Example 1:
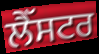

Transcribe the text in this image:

ਲੈੱਸਟਰ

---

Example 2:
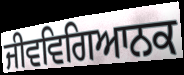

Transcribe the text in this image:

ਜੀਵਵਿਗਿਆਨਕ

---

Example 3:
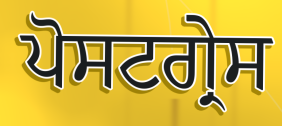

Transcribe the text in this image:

ਪੋਸਟਗ੍ਰੇਸ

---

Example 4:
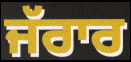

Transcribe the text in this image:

ਜੱਰਾਰ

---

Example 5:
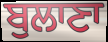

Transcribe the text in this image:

ਬੁਲਾਣਾ